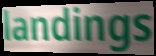
landings